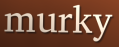
murky